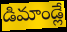
డిమాండ్లే